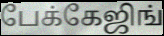
பேக்கேஜிங்